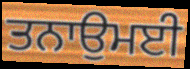
ਤਨਾਉਮਈ